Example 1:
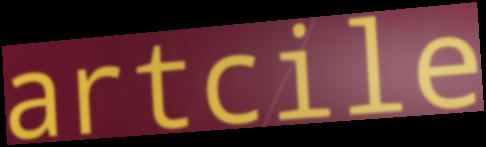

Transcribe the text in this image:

artcile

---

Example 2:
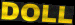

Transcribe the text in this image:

DOLL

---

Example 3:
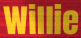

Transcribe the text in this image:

Willie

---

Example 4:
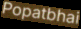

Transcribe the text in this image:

Popatbhai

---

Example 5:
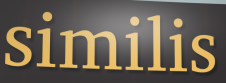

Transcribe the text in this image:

similis